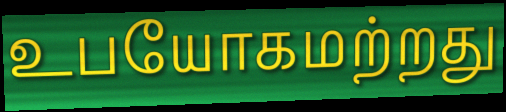
உபயோகமற்றது